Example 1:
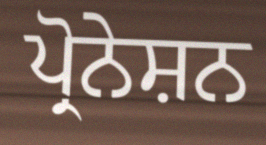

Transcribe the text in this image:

ਪ੍ਰੋਨੇਸ਼ਨ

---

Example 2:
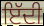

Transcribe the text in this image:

ਇੱਦੀ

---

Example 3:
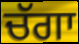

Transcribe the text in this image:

ਚੱਗਾ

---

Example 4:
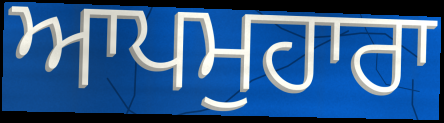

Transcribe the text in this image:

ਆਪਮੁਹਾਰਾ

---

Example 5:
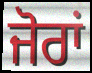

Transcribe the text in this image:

ਜੋਰਾਂ